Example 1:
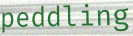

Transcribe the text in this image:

peddling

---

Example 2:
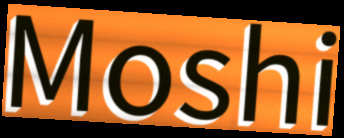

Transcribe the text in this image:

Moshi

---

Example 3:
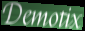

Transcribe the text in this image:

Demotix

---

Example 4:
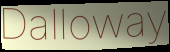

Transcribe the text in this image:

Dalloway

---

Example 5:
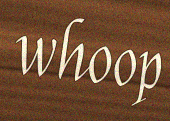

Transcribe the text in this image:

whoop